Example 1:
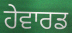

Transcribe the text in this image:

ਹੇਵਾਰਡ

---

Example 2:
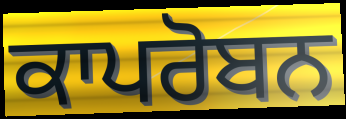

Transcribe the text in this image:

ਕਾਪਰੋਬਨ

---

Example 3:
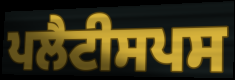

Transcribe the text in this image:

ਪਲੈਟੀਸਪਸ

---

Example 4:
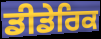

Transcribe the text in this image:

ਡੀਡੇਰਿਕ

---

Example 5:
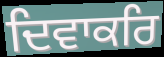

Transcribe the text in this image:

ਦਿਵਾਕਰਿ